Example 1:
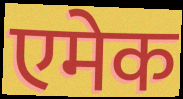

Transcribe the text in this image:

एमेक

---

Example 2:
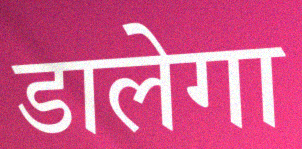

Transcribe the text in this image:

डालेगा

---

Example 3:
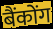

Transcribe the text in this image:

बैंकोंग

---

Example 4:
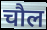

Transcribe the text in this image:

चौल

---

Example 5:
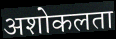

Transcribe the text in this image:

अशोकलता